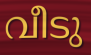
വീടു